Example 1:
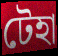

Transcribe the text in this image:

টেহা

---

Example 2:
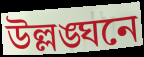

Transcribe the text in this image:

উল্লঙ্ঘনে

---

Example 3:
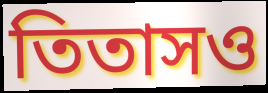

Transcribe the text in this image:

তিতাসও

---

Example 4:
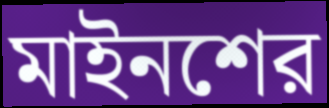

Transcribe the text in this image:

মাইনশের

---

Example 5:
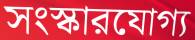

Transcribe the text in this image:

সংস্কারযোগ্য